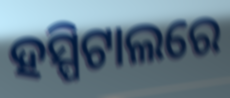
ହସ୍ପିଟାଲରେ